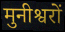
मुनीश्वरों